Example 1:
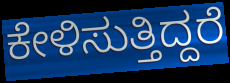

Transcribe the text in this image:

ಕೇಳಿಸುತ್ತಿದ್ದರೆ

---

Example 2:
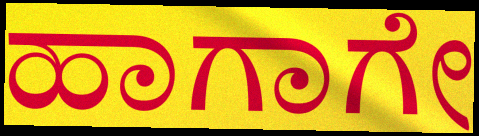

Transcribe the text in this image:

ಹಾಗಾಗೇ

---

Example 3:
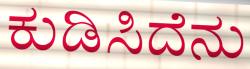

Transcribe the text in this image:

ಕುಡಿಸಿದೆನು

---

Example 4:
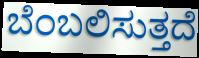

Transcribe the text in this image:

ಬೆಂಬಲಿಸುತ್ತದೆ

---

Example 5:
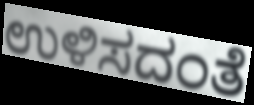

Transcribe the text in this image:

ಉಳಿಸದಂತೆ